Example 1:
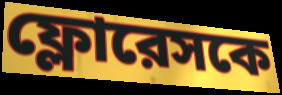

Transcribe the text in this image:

ফ্লোরেসকে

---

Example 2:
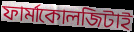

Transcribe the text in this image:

ফার্মাকোলজিটাই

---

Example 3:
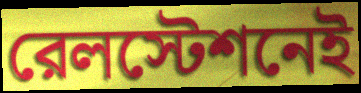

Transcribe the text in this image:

রেলস্টেশনেই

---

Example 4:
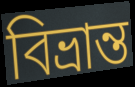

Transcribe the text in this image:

বিভ্রান্ত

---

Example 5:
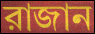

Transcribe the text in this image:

রাজান